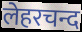
लेहरचन्द